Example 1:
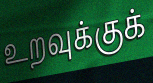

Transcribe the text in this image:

உறவுக்குக்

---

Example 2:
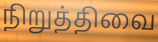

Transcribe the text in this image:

நிறுத்திவை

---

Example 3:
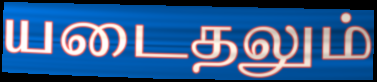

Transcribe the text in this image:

யடைதலும்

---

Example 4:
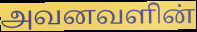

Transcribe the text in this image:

அவனவளின்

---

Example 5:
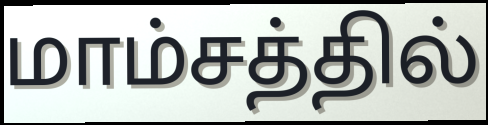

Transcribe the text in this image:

மாம்சத்தில்